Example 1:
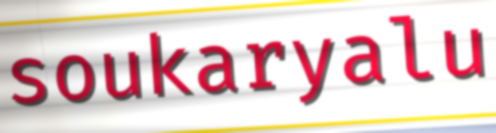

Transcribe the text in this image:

soukaryalu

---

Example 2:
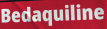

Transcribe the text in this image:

Bedaquiline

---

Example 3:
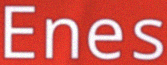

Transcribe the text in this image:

Enes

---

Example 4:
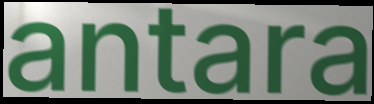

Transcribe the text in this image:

antara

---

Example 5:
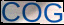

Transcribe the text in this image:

COG